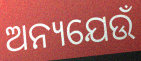
ଅନ୍ୟଯେଉଁ